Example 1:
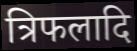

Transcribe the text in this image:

त्रिफलादि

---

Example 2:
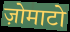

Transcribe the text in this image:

ज़ोमाटो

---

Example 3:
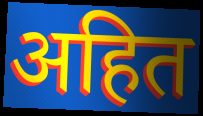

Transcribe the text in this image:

अहित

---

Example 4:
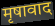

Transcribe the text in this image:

मृषावाद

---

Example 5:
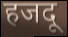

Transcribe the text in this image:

हजदू